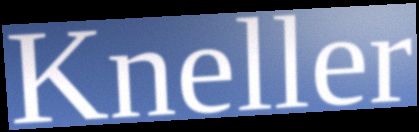
Kneller